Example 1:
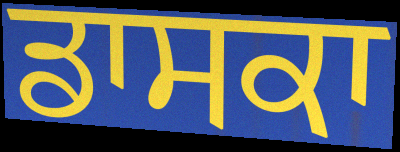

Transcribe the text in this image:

ਡਾਸਕਾ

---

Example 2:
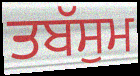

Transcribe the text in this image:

ਤਬੱਸੁਮ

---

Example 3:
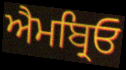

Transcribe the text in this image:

ਐਮਬ੍ਰਿਓ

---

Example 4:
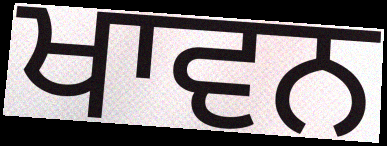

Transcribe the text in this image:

ਖਾਵਨ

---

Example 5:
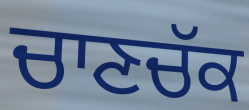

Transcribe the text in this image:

ਚਾਣਚੱਕ